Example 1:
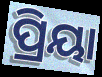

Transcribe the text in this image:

ପ୍ରିୟା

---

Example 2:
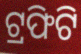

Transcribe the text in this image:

ଟ୍ରଫିଟି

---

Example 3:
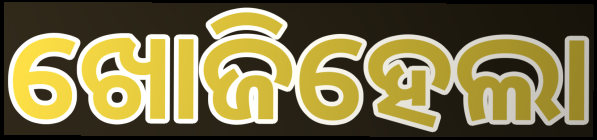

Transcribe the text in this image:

ଖୋଜିହେଲା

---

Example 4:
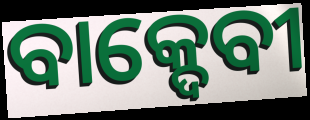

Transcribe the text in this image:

ବାକ୍ଦେବୀ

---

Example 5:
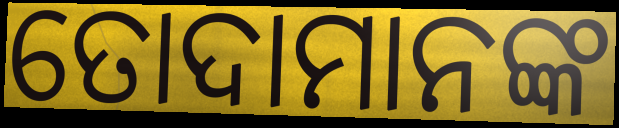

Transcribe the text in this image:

ତୋଦାମାନଙ୍କ